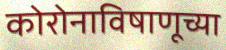
कोरोनाविषाणूच्या